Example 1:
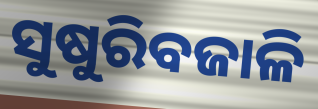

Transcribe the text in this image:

ସୁଷୁରିବଜାଳି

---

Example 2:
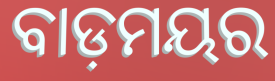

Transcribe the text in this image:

ବାଡ଼ମୟର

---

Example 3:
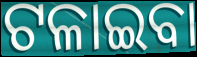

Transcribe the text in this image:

ଟଳାଇବା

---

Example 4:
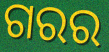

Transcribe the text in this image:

ଗରର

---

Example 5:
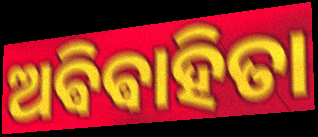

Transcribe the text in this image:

ଅଵିଵାହିତା